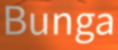
Bunga